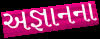
અજ્ઞાનના